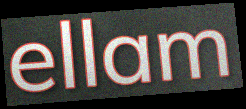
ellam